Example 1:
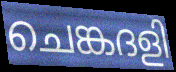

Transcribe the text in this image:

ചെങ്കദളി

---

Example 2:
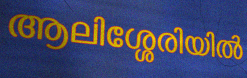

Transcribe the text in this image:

ആലിശ്ശേരിയിൽ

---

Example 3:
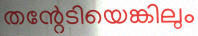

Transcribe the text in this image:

തന്റേടിയെങ്കിലും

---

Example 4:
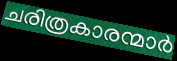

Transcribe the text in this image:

ചരിത്രകാരന്മാർ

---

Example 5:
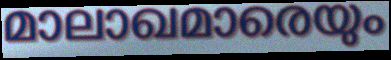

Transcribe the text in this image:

മാലാഖമാരെയും